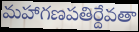
మహాగణపతిర్దేవతా